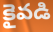
కైవడి